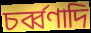
চর্ব্বণাদি